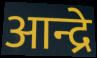
आन्द्रे